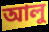
আলু